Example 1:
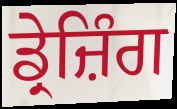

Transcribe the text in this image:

ਡ੍ਰੇਜ਼ਿੰਗ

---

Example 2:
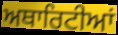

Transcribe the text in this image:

ਅਥਾਰਿਟੀਆਂ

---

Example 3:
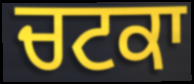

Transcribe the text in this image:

ਚਟਕਾ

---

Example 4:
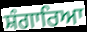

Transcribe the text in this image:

ਸ਼ੰਗਾਰਿਆ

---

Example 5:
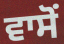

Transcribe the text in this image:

ਵਾਸੋਂ